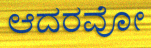
ಆದರವೋ